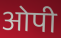
ओपी